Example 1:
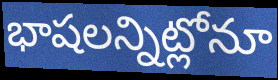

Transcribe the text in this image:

భాషలన్నిట్లోనూ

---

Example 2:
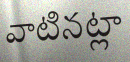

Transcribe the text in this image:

వాటినట్లా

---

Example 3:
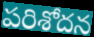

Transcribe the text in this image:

పరిశోదన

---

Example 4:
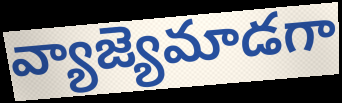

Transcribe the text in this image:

వ్యాజ్యెమాడగా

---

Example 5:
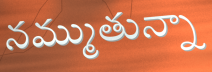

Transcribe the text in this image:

నమ్ముతున్నా